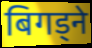
बिगड्ने